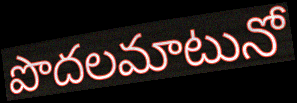
పొదలమాటునో